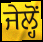
ਜੇਲ੍ਹੋਂ